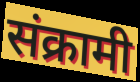
संक्रामी